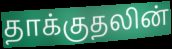
தாக்குதலின்